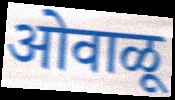
ओवाळू